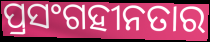
ପ୍ରସଂଗହୀନତାର